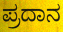
ಪ್ರದಾನ